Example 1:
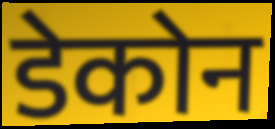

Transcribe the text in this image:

डेकोन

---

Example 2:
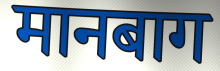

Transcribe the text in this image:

मानबाग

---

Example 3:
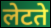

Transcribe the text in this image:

लेटते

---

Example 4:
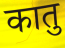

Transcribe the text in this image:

कातु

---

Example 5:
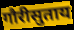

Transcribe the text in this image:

गौरीसुताय